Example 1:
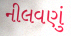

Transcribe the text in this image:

નીલવણું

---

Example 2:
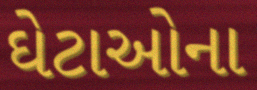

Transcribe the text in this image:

ઘેટાઓના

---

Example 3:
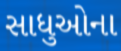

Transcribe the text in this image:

સાધુઓના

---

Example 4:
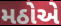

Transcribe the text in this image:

મઠોએ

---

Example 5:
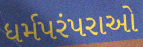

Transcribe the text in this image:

ધર્મપરંપરાઓ